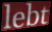
lebt